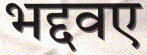
भद्दवए